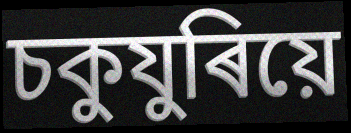
চকুযুৰিয়ে